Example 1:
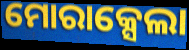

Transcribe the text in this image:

ମୋରାକ୍ସେଲା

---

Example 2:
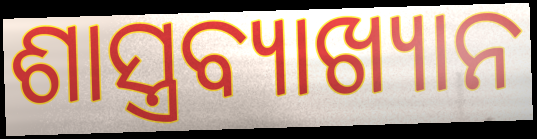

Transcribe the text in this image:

ଶାସ୍ତ୍ରବ୍ୟାଖ୍ୟାନ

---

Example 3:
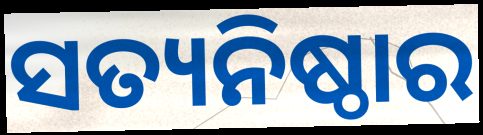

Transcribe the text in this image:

ସତ୍ୟନିଷ୍ଠାର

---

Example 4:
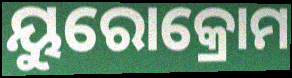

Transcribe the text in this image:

ୟୁରୋକ୍ରୋମ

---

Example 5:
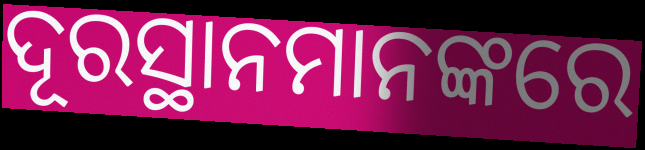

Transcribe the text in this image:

ଦୂରସ୍ଥାନମାନଙ୍କରେ